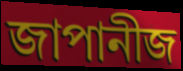
জাপানীজ